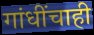
गांधींचाही